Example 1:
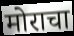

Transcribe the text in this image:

मोराचा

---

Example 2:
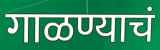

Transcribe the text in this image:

गाळण्याचं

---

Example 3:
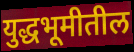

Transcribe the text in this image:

युद्धभूमीतील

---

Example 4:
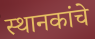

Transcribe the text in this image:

स्थानकांचे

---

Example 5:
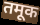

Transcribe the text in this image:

तमूक